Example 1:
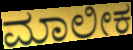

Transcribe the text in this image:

ಮಾಲೀಕ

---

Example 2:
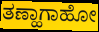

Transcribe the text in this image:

ತಣ್ಹಾಗಾಹೋ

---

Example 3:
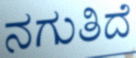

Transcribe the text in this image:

ನಗುತಿದೆ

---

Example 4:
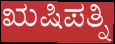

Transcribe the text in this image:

ಋಷಿಪತ್ನಿ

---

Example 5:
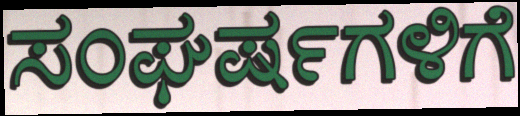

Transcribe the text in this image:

ಸಂಘರ್ಷಗಳಿಗೆ